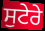
ਸੁਟੇਰੇ